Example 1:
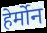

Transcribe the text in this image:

हेर्मोन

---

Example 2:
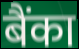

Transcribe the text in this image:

बैंका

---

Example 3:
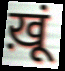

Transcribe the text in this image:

ख़ूं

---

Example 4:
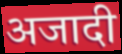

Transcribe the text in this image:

अजादी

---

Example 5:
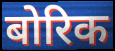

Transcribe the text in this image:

बोरिक